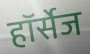
हॉर्सेज